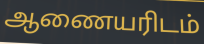
ஆணையரிடம்